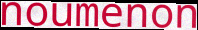
noumenon